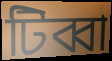
টিব্বা